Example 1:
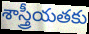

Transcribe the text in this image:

శాస్త్రీయతకు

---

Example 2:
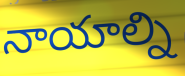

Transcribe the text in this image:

నాయాల్ని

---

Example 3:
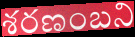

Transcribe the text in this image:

శరణంబని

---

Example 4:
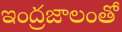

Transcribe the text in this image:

ఇంద్రజాలంతో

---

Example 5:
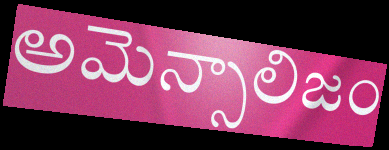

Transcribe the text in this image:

అమెన్సాలిజం